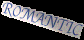
ROMANTIC